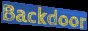
Backdoor